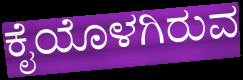
ಕೈಯೊಳಗಿರುವ